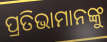
ପ୍ରତିଭାମାନଙ୍କୁ